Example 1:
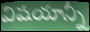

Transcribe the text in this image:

విషయాన్నీ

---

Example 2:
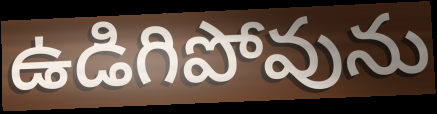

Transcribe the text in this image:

ఉడిగిపోవును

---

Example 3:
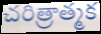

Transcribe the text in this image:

చరిత్రాత్మక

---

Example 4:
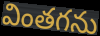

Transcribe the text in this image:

వింతగను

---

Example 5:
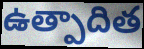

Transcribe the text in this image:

ఉత్పాదిత